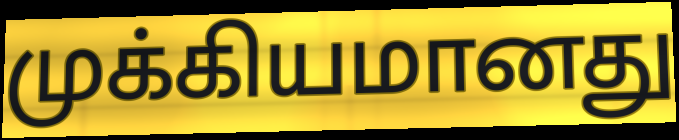
முக்கியமானது